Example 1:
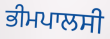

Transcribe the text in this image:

ਭੀਮਪਾਲਸੀ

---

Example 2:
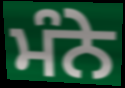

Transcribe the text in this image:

ਮੰਨੇ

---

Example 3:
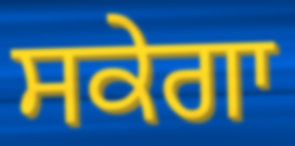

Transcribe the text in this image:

ਸਕੇਗਾ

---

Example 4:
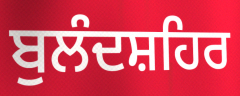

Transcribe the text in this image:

ਬੁਲੰਦਸ਼ਹਿਰ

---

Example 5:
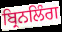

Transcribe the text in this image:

ਬ੍ਰਿਨਲਿੰਗ